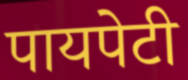
पायपेटी